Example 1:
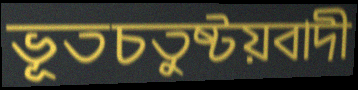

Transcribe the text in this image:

ভূতচতুষ্টয়বাদী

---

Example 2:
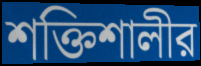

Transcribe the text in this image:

শক্তিশালীর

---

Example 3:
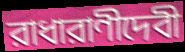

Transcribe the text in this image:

রাধারাণীদেবী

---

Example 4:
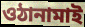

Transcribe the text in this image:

ওঠানামাই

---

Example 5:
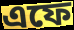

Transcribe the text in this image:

এফে